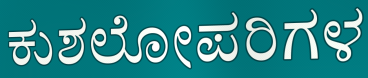
ಕುಶಲೋಪರಿಗಳ